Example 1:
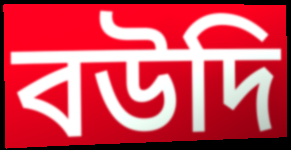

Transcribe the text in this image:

বউদি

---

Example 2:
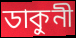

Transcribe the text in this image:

ডাকুনী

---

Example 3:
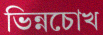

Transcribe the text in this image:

ভিন্নচোখ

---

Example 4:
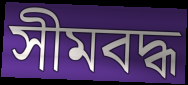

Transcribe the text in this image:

সীমবদ্ধ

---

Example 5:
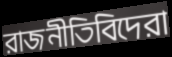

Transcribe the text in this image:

রাজনীতিবিদেরা